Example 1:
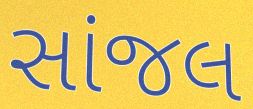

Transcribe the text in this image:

સાંજલ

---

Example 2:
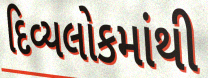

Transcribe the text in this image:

દિવ્યલોકમાંથી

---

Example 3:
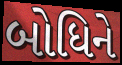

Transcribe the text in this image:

બોધિને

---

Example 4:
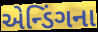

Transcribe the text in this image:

એન્ડિંગના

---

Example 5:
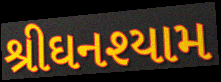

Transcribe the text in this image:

શ્રીઘનશ્યામ